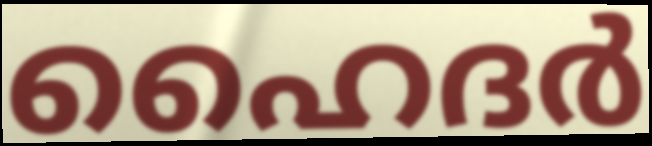
ഹൈദർ